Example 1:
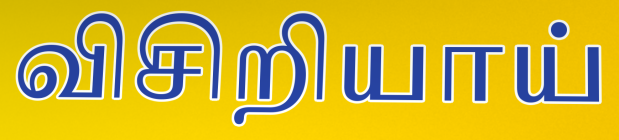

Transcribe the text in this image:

விசிறியாய்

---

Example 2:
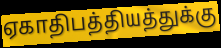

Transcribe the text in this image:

ஏகாதிபத்தியத்துக்கு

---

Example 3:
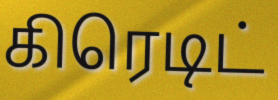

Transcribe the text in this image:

கிரெடிட்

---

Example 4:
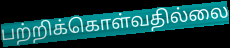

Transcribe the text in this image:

பற்றிக்கொள்வதில்லை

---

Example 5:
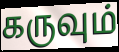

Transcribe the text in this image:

கருவும்